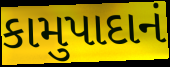
કામુપાદાનં